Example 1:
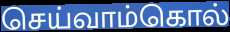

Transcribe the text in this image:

செய்வாம்கொல்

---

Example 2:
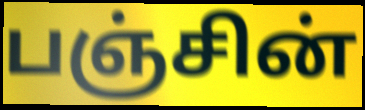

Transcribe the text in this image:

பஞ்சின்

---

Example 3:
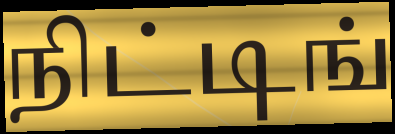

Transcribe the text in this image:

நிட்டிங்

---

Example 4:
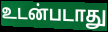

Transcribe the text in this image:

உடன்படாது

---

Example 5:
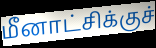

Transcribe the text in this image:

மீனாட்சிக்குச்